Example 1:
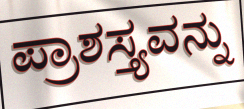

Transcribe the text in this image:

ಪ್ರಾಶಸ್ತ್ಯವನ್ನು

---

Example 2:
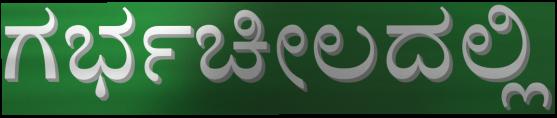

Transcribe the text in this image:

ಗರ್ಭಚೀಲದಲ್ಲಿ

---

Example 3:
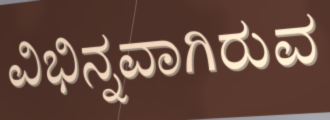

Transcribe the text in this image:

ವಿಭಿನ್ನವಾಗಿರುವ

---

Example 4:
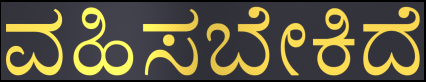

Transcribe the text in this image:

ವಹಿಸಬೇಕಿದೆ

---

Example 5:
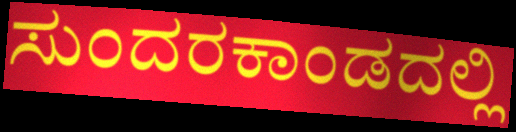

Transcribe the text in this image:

ಸುಂದರಕಾಂಡದಲ್ಲಿ